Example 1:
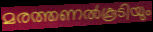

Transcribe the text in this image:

മരത്തണൽകൂടിയും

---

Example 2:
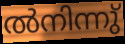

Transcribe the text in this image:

ൽനിന്നു്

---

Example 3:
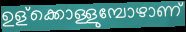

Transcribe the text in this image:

ഉള്ക്കൊള്ളുമ്പോഴാണ്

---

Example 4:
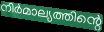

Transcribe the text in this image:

നിർമാല്യത്തിന്റെ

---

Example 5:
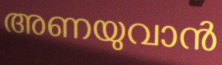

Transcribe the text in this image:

അണയുവാൻ